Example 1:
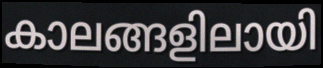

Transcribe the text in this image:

കാലങ്ങളിലായി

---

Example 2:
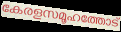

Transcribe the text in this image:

കേരളസമൂഹത്തോട്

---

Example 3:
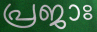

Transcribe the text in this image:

പ്രജാഃ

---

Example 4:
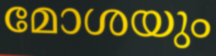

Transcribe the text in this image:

മോശയും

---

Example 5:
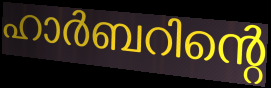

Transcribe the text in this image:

ഹാർബറിന്റെ